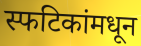
स्फटिकांमधून